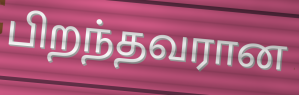
பிறந்தவரான